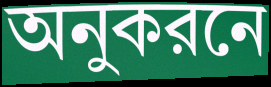
অনুকরনে